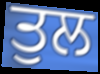
ਤੁਲ